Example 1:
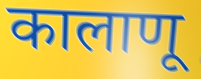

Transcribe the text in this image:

कालाणू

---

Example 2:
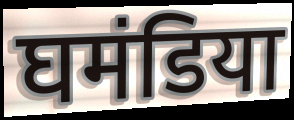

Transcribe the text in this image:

घमंडिया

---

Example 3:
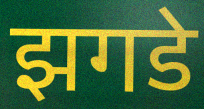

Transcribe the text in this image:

झगडे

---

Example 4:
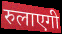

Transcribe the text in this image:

रुलाएगी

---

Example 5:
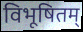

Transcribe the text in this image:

विभूषितम्